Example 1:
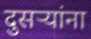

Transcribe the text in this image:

दुसर्‍यांना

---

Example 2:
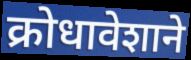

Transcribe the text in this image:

क्रोधावेशाने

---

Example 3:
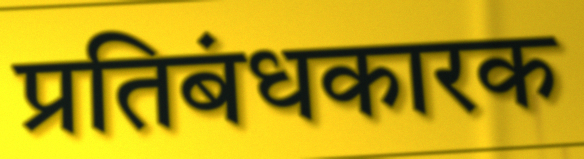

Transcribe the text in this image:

प्रतिबंधकारक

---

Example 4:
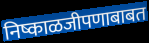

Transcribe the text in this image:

निष्काळजीपणाबाबत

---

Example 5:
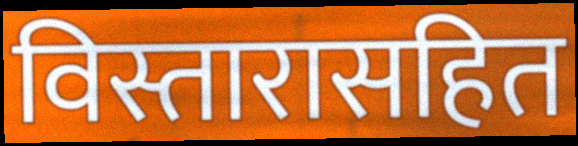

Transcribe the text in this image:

विस्तारासहित